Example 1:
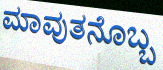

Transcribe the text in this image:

ಮಾವುತನೊಬ್ಬ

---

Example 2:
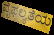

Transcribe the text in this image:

ವೈಫಲ್ಯತೆಯ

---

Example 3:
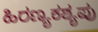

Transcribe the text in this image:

ಹಿರಣ್ಯಕಶ್ಯಪು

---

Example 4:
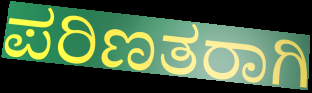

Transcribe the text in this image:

ಪರಿಣತರಾಗಿ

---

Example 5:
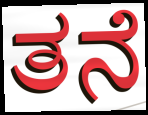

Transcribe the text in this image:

ತನೆ